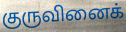
குருவினைக்